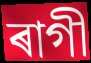
ৰাগী